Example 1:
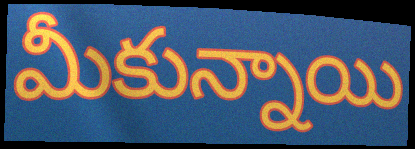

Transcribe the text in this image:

మీకున్నాయి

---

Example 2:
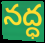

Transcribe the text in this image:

నద్ధ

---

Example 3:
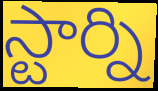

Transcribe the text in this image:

స్టార్ని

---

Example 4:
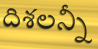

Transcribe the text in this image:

దిశలన్నీ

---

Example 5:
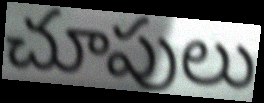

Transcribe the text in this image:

చూపులు